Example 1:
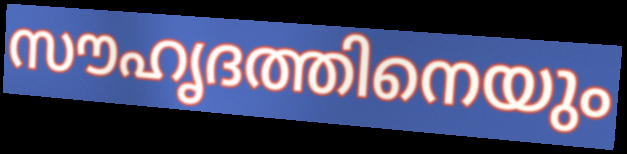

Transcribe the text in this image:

സൗഹൃദത്തിനെയും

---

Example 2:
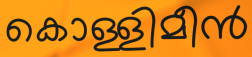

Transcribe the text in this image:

കൊള്ളിമീൻ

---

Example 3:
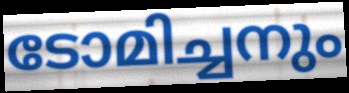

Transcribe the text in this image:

ടോമിച്ചനും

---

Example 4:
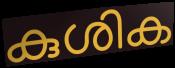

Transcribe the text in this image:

കുശിക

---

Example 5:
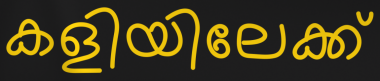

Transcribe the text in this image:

കളിയിലേക്ക്